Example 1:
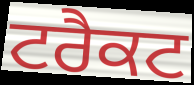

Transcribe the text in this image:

ਟਰੈਕਟ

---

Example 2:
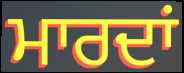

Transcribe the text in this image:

ਮਾਰਦਾਂ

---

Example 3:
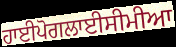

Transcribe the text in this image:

ਹਾਈਪੋਗਲਾਈਸੀਮੀਆ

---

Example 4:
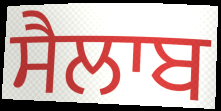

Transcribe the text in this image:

ਸੈਲਾਬ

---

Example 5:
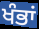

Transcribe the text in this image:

ਖੰਭਾਂ